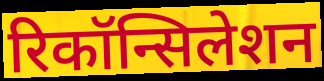
रिकॉन्सिलेशन